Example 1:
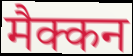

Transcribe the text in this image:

मैक्कन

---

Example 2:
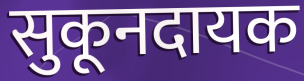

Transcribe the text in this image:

सुकूनदायक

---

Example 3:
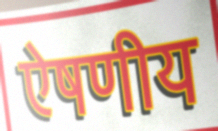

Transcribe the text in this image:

ऐषणीय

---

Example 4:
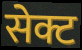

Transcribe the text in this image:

सेक्ट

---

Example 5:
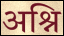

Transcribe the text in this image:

अश्नि